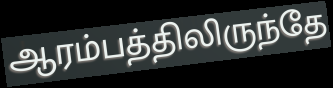
ஆரம்பத்திலிருந்தே